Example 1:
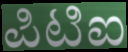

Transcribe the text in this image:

ಪಿಟಿಐ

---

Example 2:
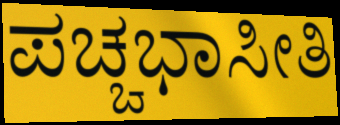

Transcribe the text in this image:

ಪಚ್ಚಭಾಸೀತಿ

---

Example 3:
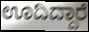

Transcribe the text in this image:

ಊದಿದ್ದಾರೆ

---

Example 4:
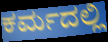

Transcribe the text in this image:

ಕರ್ಮದಲ್ಲಿ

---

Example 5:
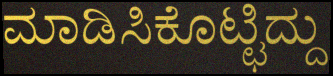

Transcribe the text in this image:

ಮಾಡಿಸಿಕೊಟ್ಟಿದ್ದು